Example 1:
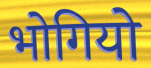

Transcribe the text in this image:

भोगियो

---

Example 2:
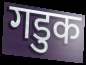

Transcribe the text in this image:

गडुक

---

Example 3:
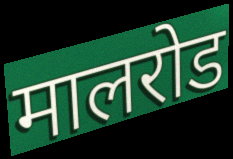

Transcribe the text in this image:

मालरोड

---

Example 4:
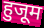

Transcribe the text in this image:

हुजूम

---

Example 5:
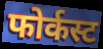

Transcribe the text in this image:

फोर्कस्ट